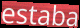
estaba